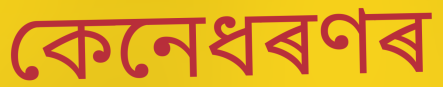
কেনেধৰণৰ